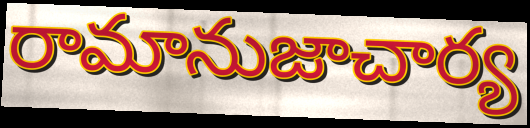
రామానుజాచార్య